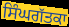
ਸਿੰਘਗੱਤਕਾ